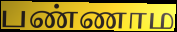
பண்ணாம